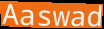
Aaswad